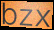
bzx